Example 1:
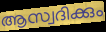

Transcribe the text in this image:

ആസ്വദിക്കും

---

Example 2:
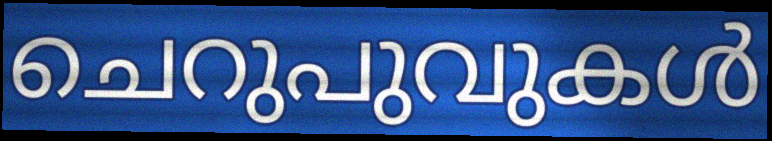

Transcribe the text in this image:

ചെറുപുവുകൾ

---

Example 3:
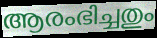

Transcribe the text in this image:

ആരംഭിച്ചതും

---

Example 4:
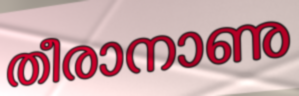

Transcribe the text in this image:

തീരാനാണു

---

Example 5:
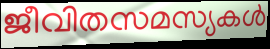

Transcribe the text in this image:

ജീവിതസമസ്യകൾ